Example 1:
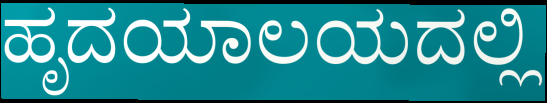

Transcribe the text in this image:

ಹೃದಯಾಲಯದಲ್ಲಿ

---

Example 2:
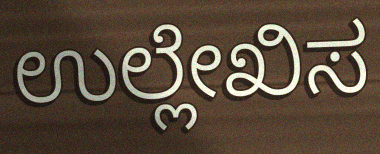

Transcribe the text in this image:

ಉಲ್ಲೇಖಿಸ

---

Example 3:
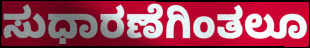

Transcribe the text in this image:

ಸುಧಾರಣೆಗಿಂತಲೂ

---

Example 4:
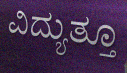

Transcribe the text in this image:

ವಿದ್ಯುತ್ತೂ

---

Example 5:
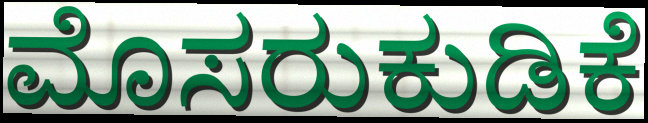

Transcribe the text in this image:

ಮೊಸರುಕುಡಿಕೆ